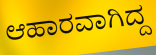
ಆಹಾರವಾಗಿದ್ದ